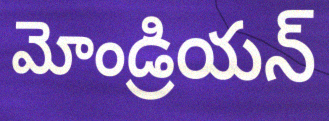
మోండ్రియన్